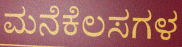
ಮನೆಕೆಲಸಗಳ